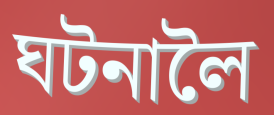
ঘটনালৈ